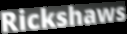
Rickshaws